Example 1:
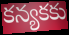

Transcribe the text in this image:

కన్యకకు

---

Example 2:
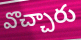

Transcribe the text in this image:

వొచ్చారు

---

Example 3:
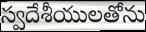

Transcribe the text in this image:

స్వదేశీయులతోను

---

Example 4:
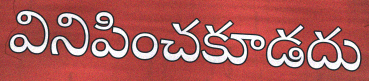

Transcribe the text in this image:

వినిపించకూడదు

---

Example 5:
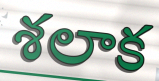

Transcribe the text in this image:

శలాక